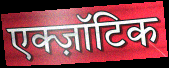
एक्ज़ॉटिक